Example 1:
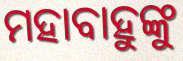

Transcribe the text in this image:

ମହାବାହୁଙ୍କୁ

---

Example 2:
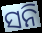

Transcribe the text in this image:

ସନି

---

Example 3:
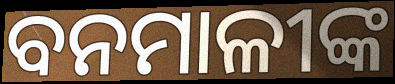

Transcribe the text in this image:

ବନମାଳୀଙ୍କ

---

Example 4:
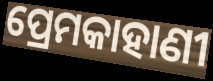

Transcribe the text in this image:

ପ୍ରେମକାହାଣୀ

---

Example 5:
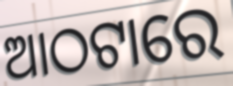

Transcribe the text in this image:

ଆଠଟାରେ